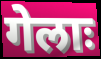
गेलाः